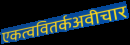
एकत्ववितर्कअवीचार